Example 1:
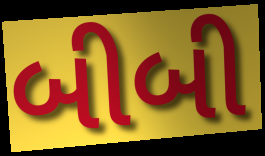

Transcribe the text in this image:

બીબી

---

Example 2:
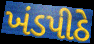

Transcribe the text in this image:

ખંડપીઠે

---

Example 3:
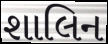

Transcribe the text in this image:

શાલિન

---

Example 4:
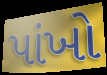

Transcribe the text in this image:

પાંખો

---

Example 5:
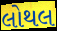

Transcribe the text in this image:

લોથલ